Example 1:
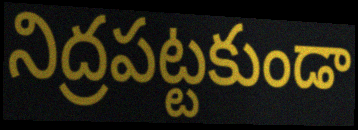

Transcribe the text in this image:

నిద్రపట్టకుండా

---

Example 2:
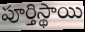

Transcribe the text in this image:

పూర్తిస్థాయి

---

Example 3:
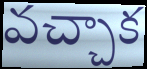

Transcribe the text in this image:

వచ్చాక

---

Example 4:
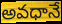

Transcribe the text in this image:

అవధానే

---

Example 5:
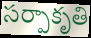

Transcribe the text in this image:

సర్పాకృతి